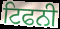
ਟਿਫਨੀ